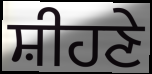
ਸ਼ੀਹਣੇ